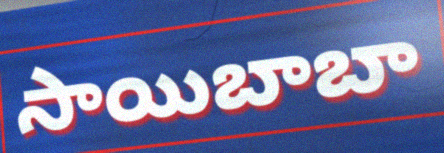
సాయిబాబా